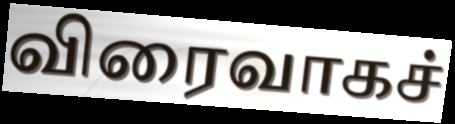
விரைவாகச்